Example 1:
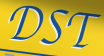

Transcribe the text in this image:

DST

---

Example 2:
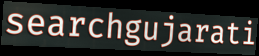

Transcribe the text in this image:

searchgujarati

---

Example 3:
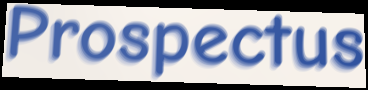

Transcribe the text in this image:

Prospectus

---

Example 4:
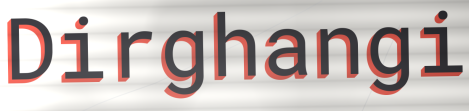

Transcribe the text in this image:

Dirghangi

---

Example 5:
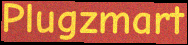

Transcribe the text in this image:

Plugzmart